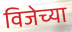
विजेच्या